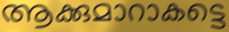
ആക്കുമാറാകട്ടെ